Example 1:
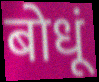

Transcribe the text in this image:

बोधूं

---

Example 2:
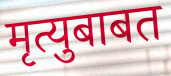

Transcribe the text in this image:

मृत्युबाबत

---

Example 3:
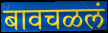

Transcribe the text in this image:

बावचळलं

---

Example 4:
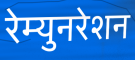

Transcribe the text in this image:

रेम्युनरेशन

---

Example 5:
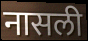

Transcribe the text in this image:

नासली